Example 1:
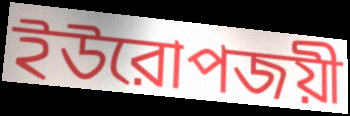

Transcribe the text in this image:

ইউরোপজয়ী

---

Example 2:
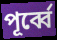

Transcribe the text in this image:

পূর্ব্বে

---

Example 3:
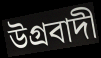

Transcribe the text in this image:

উগ্রবাদী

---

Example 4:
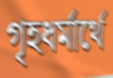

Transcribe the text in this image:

গৃহধর্মার্থে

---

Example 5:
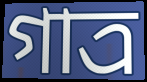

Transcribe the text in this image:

গাত্র